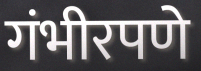
गंभीरपणे